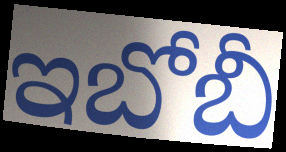
ఇబోబీ